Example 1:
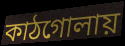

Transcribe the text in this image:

কাঠগোলায়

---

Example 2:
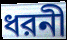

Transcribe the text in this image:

ধরনী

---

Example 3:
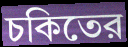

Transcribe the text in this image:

চকিতের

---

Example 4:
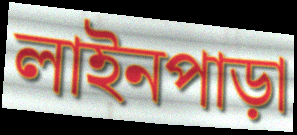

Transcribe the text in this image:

লাইনপাড়া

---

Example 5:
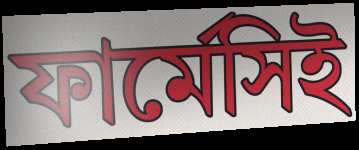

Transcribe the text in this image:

ফার্মেসিই